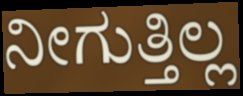
ನೀಗುತ್ತಿಲ್ಲ